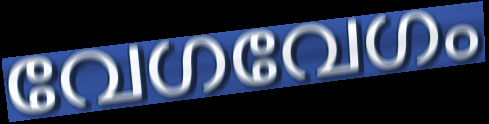
വേഗവേഗം